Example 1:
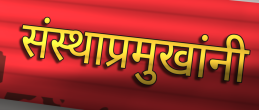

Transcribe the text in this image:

संस्थाप्रमुखांनी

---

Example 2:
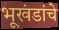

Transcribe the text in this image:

भूखंडांचे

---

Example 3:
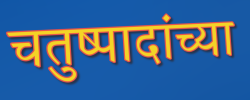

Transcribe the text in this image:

चतुष्पादांच्या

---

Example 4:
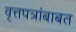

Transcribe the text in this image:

वृत्तपत्रांबाबत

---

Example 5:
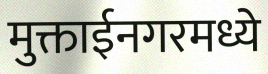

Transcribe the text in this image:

मुक्ताईनगरमध्ये